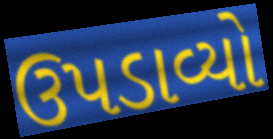
ઉપડાવ્યો